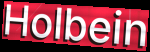
Holbein